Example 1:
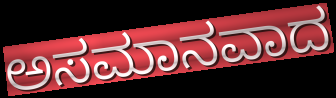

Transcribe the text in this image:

ಅಸಮಾನವಾದ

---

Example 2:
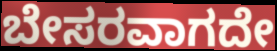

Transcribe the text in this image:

ಬೇಸರವಾಗದೇ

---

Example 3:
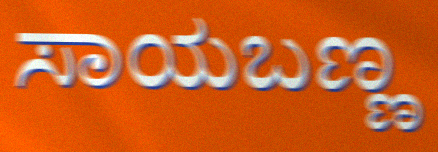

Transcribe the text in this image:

ಸಾಯಬಣ್ಣ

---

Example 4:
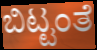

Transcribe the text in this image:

ಬಿಟ್ಟಂತೆ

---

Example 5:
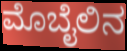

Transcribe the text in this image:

ಮೊಬೈಲಿನ